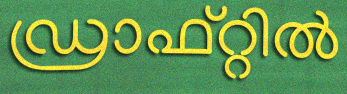
ഡ്രാഫ്റ്റിൽ